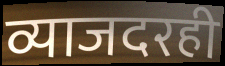
व्याजदरही